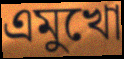
এমুখো